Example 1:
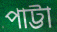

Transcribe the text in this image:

পাট্টা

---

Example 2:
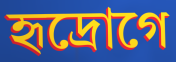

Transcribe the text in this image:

হৃদ্রোগে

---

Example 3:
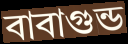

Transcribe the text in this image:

বাবাগুন্ড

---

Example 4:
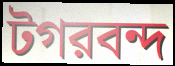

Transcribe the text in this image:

টগরবন্দ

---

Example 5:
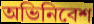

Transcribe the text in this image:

অভিনিবেশ